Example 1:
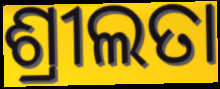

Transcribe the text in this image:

ଶ୍ରୀଲତା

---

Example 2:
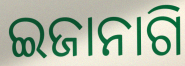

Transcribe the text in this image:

ଇଜାନାଗି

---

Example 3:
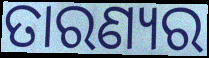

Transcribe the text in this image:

ତାରଣ୍ୟର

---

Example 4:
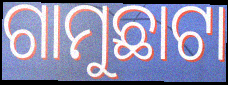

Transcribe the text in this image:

ଗାମୁଛାଟା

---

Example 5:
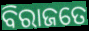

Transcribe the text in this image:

ବିରାଜତେ